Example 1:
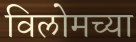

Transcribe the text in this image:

विलोमच्या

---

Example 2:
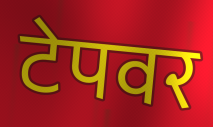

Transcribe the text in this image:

टेपवर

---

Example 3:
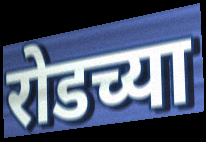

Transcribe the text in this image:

रोडच्या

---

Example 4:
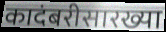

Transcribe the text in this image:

कादंबरीसारख्या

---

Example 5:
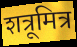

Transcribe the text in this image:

शत्रूमित्र